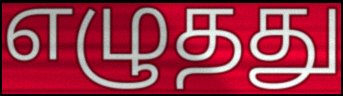
எழுதது